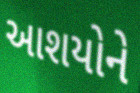
આશયોને